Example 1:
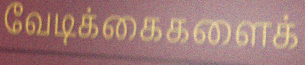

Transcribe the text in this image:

வேடிக்கைகளைக்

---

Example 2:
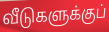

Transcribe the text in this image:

வீடுகளுக்குப்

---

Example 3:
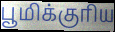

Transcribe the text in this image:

பூமிக்குரிய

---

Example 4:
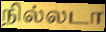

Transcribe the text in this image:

நில்லடா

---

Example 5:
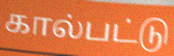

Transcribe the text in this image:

கால்பட்டு